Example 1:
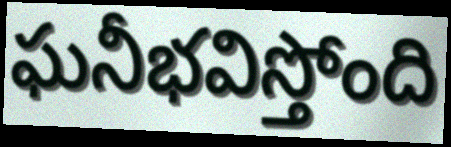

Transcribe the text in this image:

ఘనీభవిస్తోంది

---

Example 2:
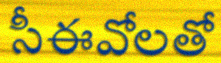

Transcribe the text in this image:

సీఈవోలతో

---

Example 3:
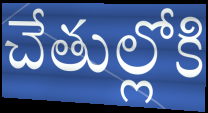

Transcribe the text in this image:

చేతుల్లోకి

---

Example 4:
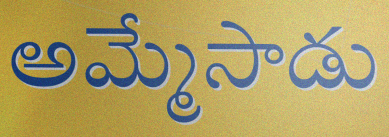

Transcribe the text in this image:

అమ్మేసాడు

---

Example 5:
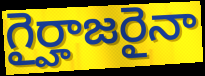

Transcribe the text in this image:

గైర్హాజరైనా